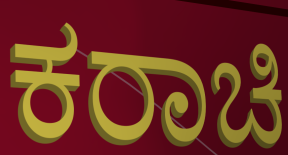
ಕರಾಚಿ